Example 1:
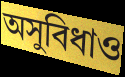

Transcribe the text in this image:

অসুবিধাও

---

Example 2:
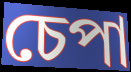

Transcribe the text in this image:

চেপা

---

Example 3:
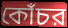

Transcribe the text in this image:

কোঁচর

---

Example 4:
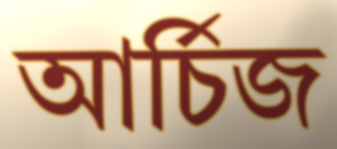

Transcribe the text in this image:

আর্চিজ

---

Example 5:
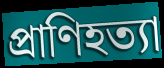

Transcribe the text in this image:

প্রাণিহত্যা